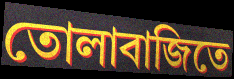
তোলাবাজিতে